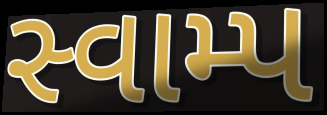
સ્વામ્પ